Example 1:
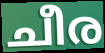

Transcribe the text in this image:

ചീര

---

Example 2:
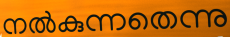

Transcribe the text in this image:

നൽകുന്നതെന്നു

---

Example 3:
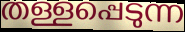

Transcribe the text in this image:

തള്ളപ്പെടുന്ന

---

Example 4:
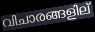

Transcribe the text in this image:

വിചാരങ്ങളില്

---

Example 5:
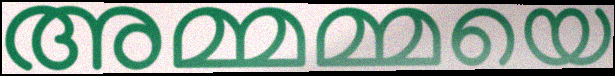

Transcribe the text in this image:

അമ്മമ്മയെ